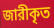
জারীকৃত